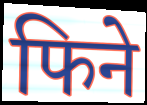
फिने